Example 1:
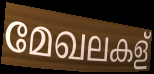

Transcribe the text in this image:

മേഖലകള്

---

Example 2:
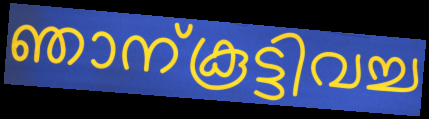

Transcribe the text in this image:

ഞാന്കൂട്ടിവച്ച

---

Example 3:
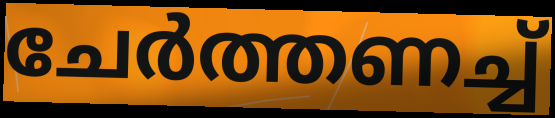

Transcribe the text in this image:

ചേർത്തണച്ച്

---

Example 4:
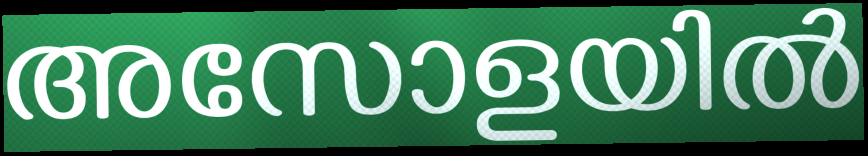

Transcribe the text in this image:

അസോളയിൽ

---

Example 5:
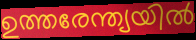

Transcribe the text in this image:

ഉത്തരേന്ത്യയിൽ